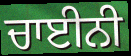
ਚਾਈਨੀ